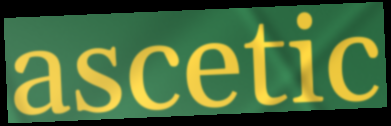
ascetic